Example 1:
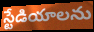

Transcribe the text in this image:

స్టేడియాలను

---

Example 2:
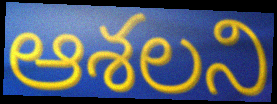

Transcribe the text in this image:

ఆశలని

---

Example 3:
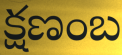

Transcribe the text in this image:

క్షణంబ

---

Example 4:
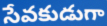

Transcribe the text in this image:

సేవకుడుగా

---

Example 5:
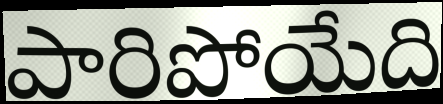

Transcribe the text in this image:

పారిపోయేది